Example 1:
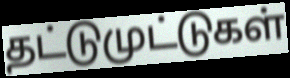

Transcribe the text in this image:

தட்டுமுட்டுகள்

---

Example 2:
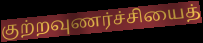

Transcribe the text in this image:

குற்றவுணர்ச்சியைத்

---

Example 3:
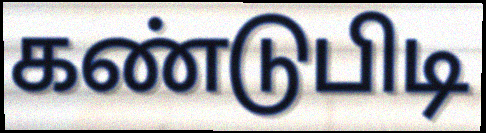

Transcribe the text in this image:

கண்டுபிடி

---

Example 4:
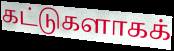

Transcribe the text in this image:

கட்டுகளாகக்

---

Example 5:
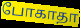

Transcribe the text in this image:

போகாதா